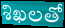
శిఖలతో